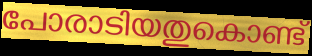
പോരാടിയതുകൊണ്ട്